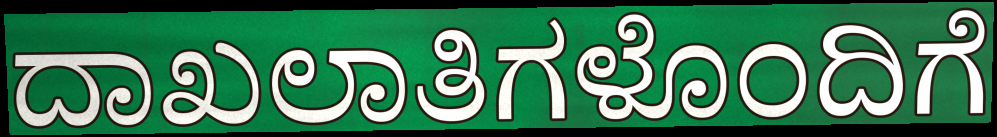
ದಾಖಲಾತಿಗಳೊಂದಿಗೆ